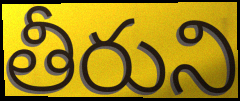
తీరుని